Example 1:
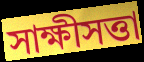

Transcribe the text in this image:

সাক্ষীসত্তা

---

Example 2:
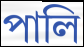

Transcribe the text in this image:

পালি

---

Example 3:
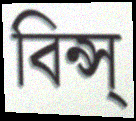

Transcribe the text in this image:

বিন্স্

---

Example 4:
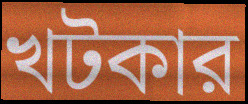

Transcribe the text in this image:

খটকার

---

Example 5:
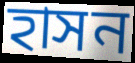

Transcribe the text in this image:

হাসন